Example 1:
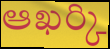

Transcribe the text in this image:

ఆఖర్కి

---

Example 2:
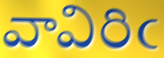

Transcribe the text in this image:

వావిరిఁ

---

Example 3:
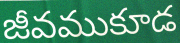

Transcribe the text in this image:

జీవముకూడ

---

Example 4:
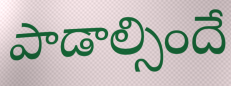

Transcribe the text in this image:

పాడాల్సిందే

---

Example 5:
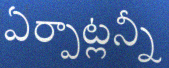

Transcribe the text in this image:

ఏర్పాట్లన్నీ